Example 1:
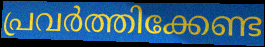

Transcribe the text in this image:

പ്രവർത്തിക്കേണ്ട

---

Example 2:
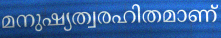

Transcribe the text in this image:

മനുഷ്യത്വരഹിതമാണ്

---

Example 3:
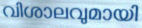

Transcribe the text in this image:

വിശാലവുമായി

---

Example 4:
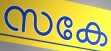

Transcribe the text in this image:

സകേ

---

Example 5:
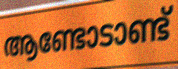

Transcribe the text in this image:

ആണ്ടോടാണ്ട്